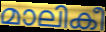
മാലികീ